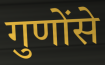
गुणोंसे